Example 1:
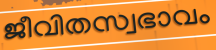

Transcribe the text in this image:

ജീവിതസ്വഭാവം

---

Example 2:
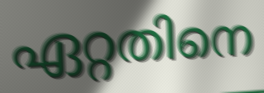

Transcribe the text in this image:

ഏറ്റതിനെ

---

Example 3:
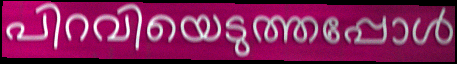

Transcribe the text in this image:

പിറവിയെടുത്തപ്പോൾ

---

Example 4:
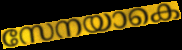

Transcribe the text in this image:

സേനയാകെ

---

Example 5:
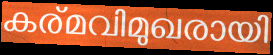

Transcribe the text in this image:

കര്മവിമുഖരായി